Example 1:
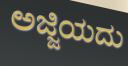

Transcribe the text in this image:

ಅಜ್ಜಿಯದು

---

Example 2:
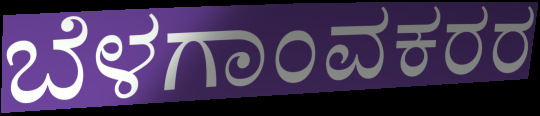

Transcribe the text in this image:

ಬೆಳಗಾಂವಕರರ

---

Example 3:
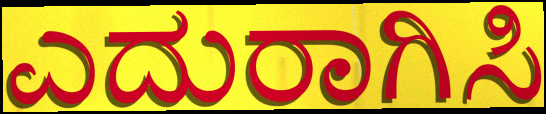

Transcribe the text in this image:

ಎದುರಾಗಿಸಿ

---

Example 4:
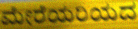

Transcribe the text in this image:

ಮೇರೆಯರಿಯದ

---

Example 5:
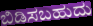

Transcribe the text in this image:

ಬಿಡಿಸಬಹುದು